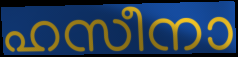
ഹസീനാ